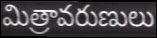
మిత్రావరుణులు